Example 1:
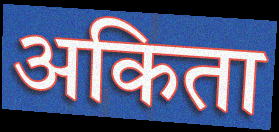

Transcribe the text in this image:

अकिता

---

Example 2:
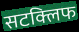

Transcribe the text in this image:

सटक्लिफ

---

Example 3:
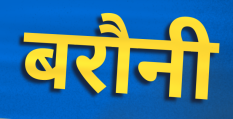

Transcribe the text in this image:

बरौनी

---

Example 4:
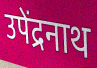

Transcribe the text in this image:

उपेंद्रनाथ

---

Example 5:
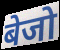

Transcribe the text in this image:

बेजो